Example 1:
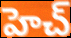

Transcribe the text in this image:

హెచ్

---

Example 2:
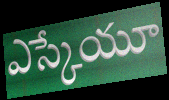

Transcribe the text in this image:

ఎస్కేయూ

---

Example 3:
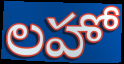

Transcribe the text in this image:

లహో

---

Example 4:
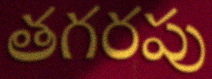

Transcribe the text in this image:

తగరపు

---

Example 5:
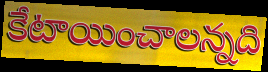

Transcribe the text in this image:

కేటాయించాలన్నది